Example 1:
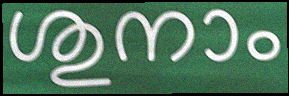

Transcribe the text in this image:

ശുനാം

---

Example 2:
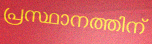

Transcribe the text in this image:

പ്രസ്ഥാനത്തിന്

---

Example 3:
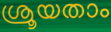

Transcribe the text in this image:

ശ്രൂയതാം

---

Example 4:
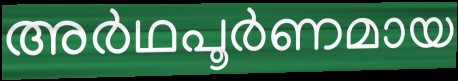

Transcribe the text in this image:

അർഥപൂർണമായ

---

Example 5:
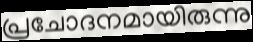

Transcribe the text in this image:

പ്രചോദനമായിരുന്നു